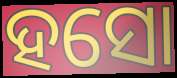
ହସୋ